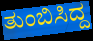
ತುಂಬಿಸಿದ್ದ